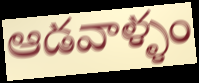
ఆడవాళ్ళం